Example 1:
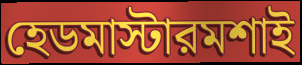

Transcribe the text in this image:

হেডমাস্টারমশাই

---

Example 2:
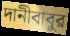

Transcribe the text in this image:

দানীবাবুর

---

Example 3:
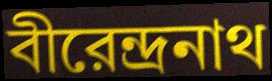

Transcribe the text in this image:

বীরেন্দ্রনাথ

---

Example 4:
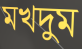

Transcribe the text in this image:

মখদুম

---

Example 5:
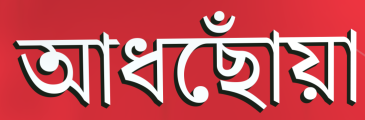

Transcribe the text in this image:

আধছোঁয়া